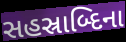
સહસ્રાબ્દિના